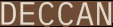
DECCAN